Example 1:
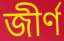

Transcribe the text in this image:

জীৰ্ণ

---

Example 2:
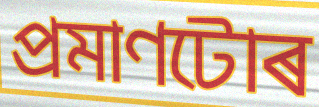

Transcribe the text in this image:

প্ৰমাণটোৰ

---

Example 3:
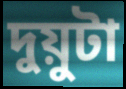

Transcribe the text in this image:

দুয়ুটা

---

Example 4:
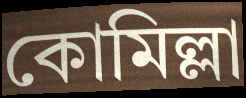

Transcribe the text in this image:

কোমিল্লা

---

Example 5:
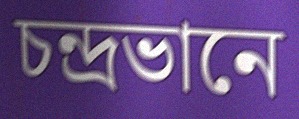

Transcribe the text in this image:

চন্দ্ৰভানে